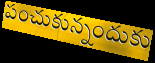
పంచుకున్నందుకు